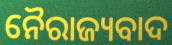
ନୈରାଜ୍ୟବାଦ